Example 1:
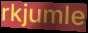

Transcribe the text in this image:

rkjumle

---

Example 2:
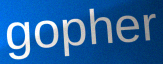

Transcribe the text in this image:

gopher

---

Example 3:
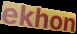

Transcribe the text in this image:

ekhon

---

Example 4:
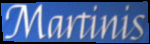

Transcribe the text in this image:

Martinis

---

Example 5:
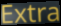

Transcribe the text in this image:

Extra